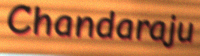
Chandaraju